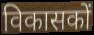
विकासकों